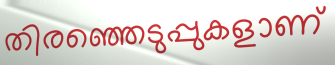
തിരഞ്ഞെടുപ്പുകളാണ്